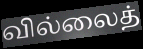
வில்லைத்